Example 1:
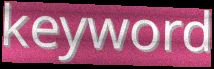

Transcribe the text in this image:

keyword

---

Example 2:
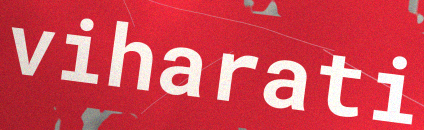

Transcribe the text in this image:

viharati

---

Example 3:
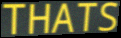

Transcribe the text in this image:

THATS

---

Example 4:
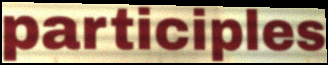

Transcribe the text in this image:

participles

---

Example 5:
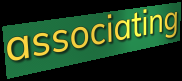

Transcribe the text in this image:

associating